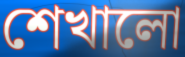
শেখালো